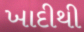
ખાદીથી